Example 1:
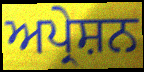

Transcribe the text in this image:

ਅਪ੍ਰੇਸ਼ਨ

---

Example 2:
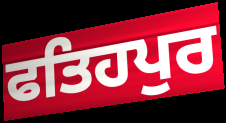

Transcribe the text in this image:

ਫਤਿਹਪੁਰ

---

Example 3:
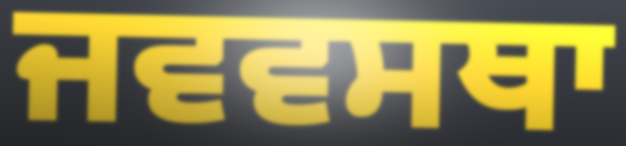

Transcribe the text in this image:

ਜਵਵਸਥਾ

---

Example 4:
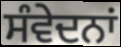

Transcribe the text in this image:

ਸੰਵੇਦਨਾਂ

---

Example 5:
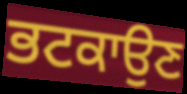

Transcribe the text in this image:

ਭਟਕਾਉਣ